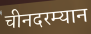
चीनदरम्यान